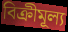
বিক্ৰীমূল্য